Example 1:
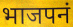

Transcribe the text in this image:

भाजपनं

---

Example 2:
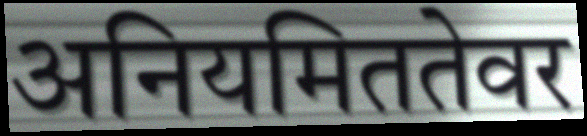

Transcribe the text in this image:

अनियमिततेवर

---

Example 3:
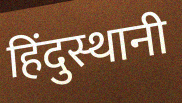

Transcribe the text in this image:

हिंदुस्थानी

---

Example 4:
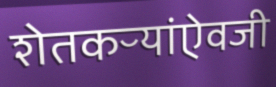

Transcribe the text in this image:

शेतकऱ्यांऐवजी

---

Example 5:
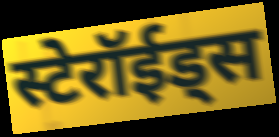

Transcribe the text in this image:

स्टेरॉईड्स